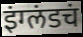
इंग्लंडचं